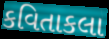
કવિતાકલા